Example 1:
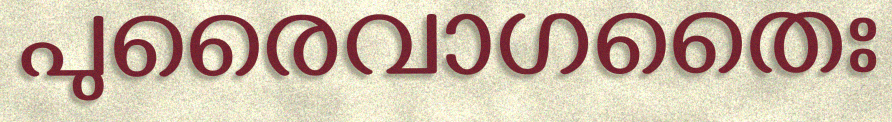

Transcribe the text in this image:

പുരൈവാഗതൈഃ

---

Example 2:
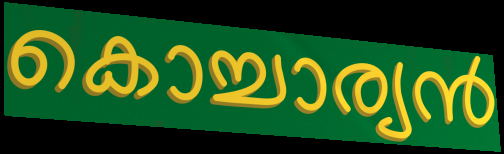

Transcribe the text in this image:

കൊച്ചാര്യൻ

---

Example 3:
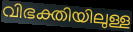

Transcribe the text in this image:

വിഭക്തിയിലുള്ള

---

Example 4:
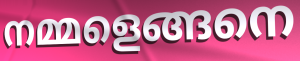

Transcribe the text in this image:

നമ്മളെങ്ങനെ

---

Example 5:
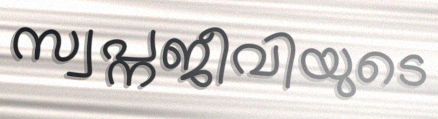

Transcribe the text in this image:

സ്വപ്നജീവിയുടെ